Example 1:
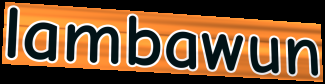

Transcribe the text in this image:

lambawun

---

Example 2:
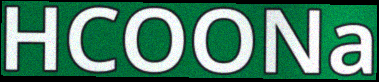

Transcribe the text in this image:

HCOONa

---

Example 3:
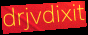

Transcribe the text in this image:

drjvdixit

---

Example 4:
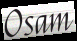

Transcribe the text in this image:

Osam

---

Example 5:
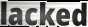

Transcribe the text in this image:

lacked